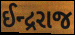
ઈન્દ્રરાજ